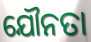
ଯୌନତା